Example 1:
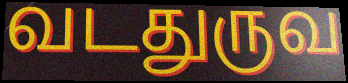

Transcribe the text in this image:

வடதுருவ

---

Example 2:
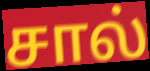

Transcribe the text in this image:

சால்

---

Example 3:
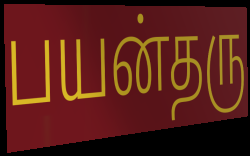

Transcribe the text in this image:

பயன்தரு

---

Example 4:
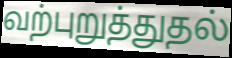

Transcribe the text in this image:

வற்புறுத்துதல்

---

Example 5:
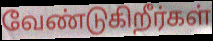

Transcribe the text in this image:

வேண்டுகிறீர்கள்